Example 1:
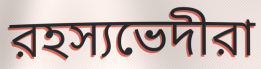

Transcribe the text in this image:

রহস্যভেদীরা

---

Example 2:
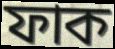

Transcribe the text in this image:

ফাক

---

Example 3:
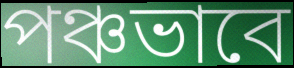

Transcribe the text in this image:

পঞ্চভাবে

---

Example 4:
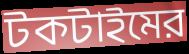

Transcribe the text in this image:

টকটাইমের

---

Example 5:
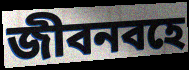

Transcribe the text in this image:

জীবনবহে